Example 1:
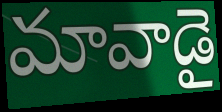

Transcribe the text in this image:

మావాడై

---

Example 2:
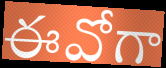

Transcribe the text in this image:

ఈవోగా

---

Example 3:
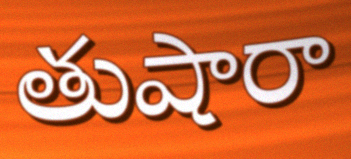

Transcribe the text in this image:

తుషారా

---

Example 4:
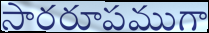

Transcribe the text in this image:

సారరూపముగా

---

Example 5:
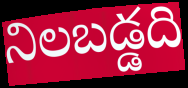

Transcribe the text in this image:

నిలబడ్డది